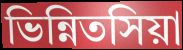
ভিন্নিতসিয়া